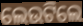
ଲେଉଟିଲେ